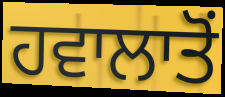
ਹਵਾਲਾਤੋਂ